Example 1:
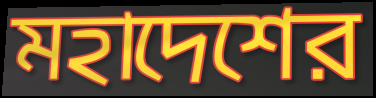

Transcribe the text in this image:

মহাদেশের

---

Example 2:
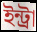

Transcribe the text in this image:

ইন্ট্রা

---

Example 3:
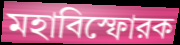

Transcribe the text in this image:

মহাবিস্ফোরক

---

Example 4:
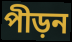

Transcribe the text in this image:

পীড়ন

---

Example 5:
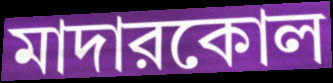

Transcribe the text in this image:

মাদারকোল